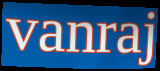
vanraj